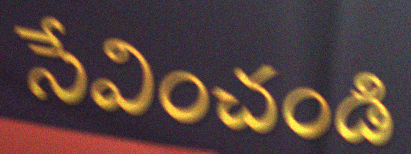
సేవించండి